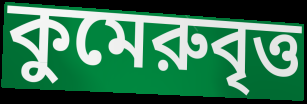
কুমেরুবৃত্ত